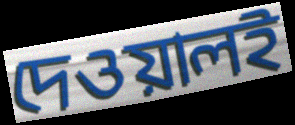
দেওয়ালই